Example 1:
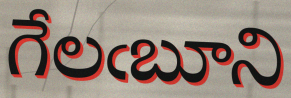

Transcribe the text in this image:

గేలఁబూని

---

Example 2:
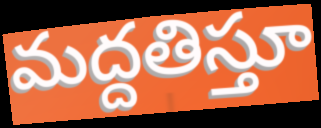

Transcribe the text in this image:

మద్దతిస్తూ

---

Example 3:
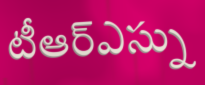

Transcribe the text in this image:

టీఆర్ఎస్ను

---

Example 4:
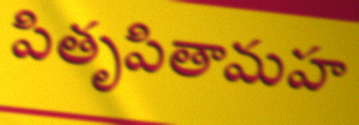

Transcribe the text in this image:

పితృపితామహ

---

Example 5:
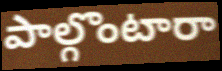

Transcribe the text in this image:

పాల్గొంటారా